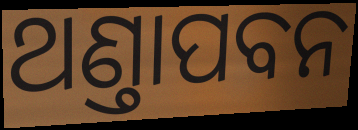
ଥଣ୍ତାପବନ